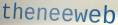
theneeweb